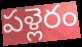
పళ్లెరం